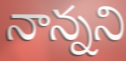
నాన్నని